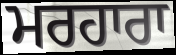
ਮਰਹਾਰਾ